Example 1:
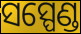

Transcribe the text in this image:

ସସ୍ପେଣ୍ଡ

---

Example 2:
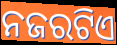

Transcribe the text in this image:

ନଜରଟିଏ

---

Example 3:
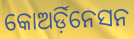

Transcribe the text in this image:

କୋଅର୍ଡ଼ିନେସନ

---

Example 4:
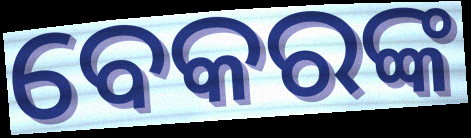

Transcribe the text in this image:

ବେକରଙ୍କ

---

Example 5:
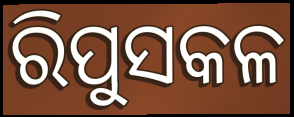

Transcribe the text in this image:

ରିପୁସକଳ